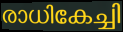
രാധികേച്ചി